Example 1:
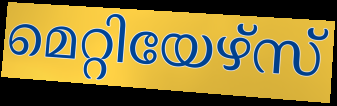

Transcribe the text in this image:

മെറ്റിയേഴ്സ്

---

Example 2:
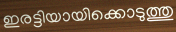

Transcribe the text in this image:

ഇരട്ടിയായിക്കൊടുത്തു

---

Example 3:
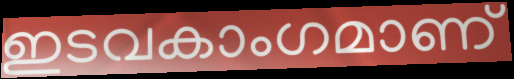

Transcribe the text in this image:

ഇടവകാംഗമാണ്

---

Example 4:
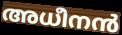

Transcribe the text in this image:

അധീനൻ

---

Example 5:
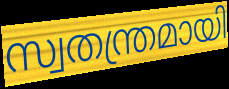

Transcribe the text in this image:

സ്വതന്ത്രമായി